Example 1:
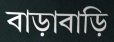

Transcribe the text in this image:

বাড়াবাড়ি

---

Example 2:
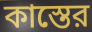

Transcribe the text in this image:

কাস্তের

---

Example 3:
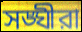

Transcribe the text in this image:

সঙ্ঘীরা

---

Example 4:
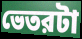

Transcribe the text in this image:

ভেতরটা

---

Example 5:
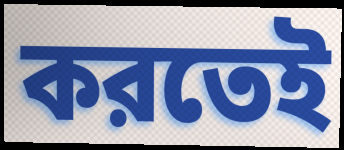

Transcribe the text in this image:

করতেই